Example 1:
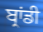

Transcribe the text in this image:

ਬ੍ਰਾਂਡੀ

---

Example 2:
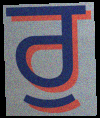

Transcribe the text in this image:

ਰੁ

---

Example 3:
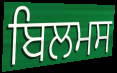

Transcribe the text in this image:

ਬਿਲਮਸ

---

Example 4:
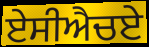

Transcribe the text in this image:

ਏਸੀਐਚਏ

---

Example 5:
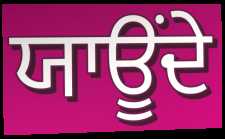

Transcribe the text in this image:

ਯਾਊਂਦੇ